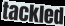
tackled